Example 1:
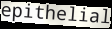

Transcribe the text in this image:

epithelial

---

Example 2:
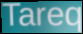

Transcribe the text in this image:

Tareq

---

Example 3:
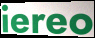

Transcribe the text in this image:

iereo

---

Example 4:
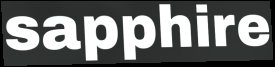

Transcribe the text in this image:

sapphire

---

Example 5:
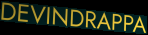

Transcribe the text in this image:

DEVINDRAPPA